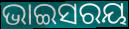
ଭାଇସରୟ